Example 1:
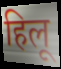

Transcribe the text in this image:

हिलू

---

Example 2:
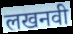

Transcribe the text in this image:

लखनवी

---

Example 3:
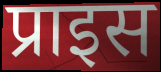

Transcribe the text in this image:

प्राइस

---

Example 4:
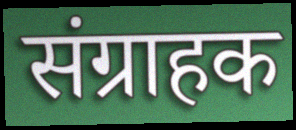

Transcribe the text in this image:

संग्राहक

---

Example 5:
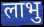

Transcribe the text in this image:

लाभु